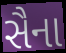
સૈના